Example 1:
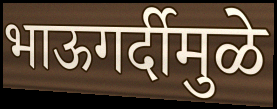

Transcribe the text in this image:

भाऊगर्दीमुळे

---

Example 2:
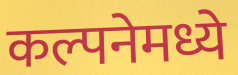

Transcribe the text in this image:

कल्पनेमध्ये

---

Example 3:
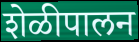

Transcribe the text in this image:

शेळीपालन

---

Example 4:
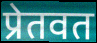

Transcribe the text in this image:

प्रेतवत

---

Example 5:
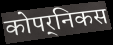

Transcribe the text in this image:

कोपर्निकस